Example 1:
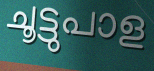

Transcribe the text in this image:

ചൂട്ടുപാള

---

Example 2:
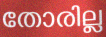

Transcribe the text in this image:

തോരില്ല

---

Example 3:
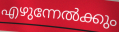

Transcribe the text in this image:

എഴുന്നേൽക്കും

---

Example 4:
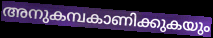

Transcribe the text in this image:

അനുകമ്പകാണിക്കുകയും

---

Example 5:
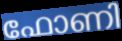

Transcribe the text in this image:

ഫോണി